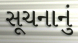
સૂચનાનું